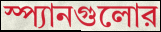
স্প্যানগুলোর